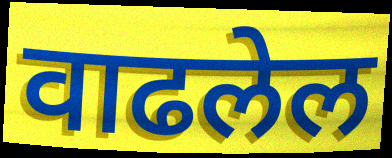
वाढलेल